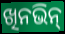
ଖିନଭିନ୍